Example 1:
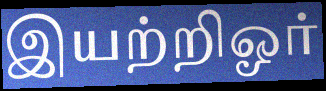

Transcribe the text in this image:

இயற்றிஓர்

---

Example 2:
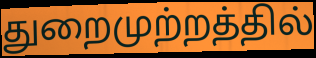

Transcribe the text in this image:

துறைமுற்றத்தில்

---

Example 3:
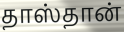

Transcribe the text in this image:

தாஸ்தான்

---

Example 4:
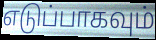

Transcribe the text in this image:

எடுப்பாகவும்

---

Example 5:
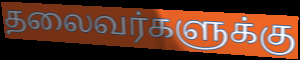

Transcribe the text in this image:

தலைவர்களுக்கு